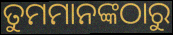
ତୁମମାନଙ୍କଠାରୁ